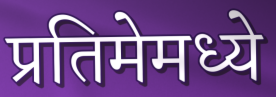
प्रतिमेमध्ये